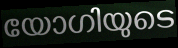
യോഗിയുടെ